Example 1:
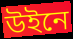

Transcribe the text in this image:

উইনে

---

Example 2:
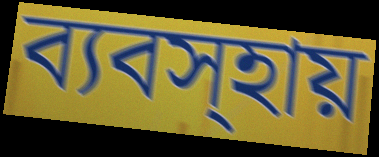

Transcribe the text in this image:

ব্যবস্হায়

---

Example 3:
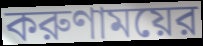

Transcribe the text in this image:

করুণাময়ের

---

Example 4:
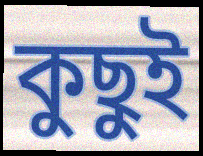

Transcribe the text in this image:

কুছুই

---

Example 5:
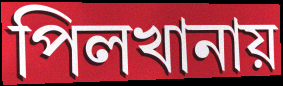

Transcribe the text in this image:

পিলখানায়